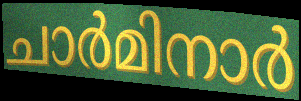
ചാർമിനാർ